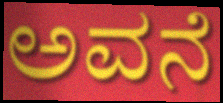
ಅವನೆ